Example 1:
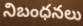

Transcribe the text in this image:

నిబంధనలు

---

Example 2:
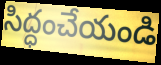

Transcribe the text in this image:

సిద్ధంచేయండి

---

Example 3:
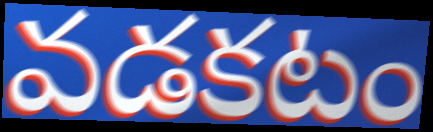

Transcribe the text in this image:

వడకటం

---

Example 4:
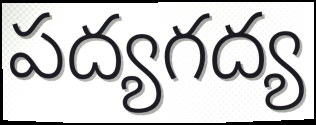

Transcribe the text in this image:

పద్యగద్య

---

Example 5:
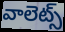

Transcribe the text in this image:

వాలెట్స్